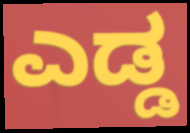
ಎಡ್ಡ